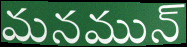
మనమున్